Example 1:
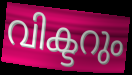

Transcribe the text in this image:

വിക്ടറും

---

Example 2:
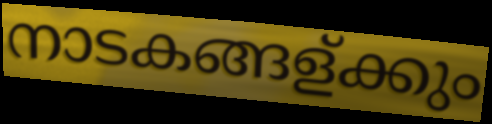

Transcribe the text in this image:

നാടകങ്ങള്ക്കും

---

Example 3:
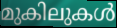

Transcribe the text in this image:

മുകിലുകൾ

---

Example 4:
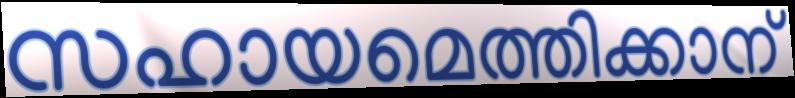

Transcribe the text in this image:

സഹായമെത്തിക്കാന്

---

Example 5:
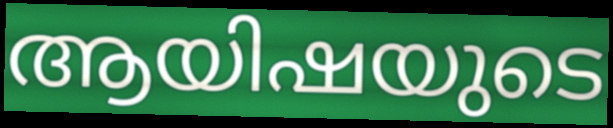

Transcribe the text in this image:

ആയിഷയുടെ